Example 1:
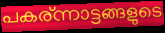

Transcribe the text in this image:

പകര്ന്നാട്ടങ്ങളുടെ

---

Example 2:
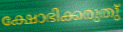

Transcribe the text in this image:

ക്ഷോഭിക്കരുതു്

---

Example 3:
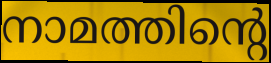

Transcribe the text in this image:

നാമത്തിന്റെ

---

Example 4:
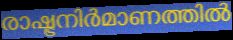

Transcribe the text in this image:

രാഷ്ട്രനിർമാണത്തിൽ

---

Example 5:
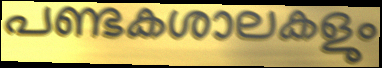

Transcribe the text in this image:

പണ്ടകശാലകളും